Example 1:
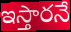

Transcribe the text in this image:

ఇస్తారనే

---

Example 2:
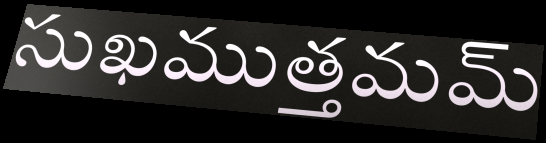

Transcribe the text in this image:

సుఖముత్తమమ్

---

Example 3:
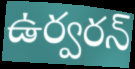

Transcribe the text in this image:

ఉర్వరన్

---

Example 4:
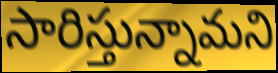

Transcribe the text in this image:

సారిస్తున్నామని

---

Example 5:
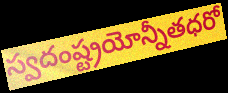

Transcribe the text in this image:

స్వదంష్ట్రయోన్నీతధరో